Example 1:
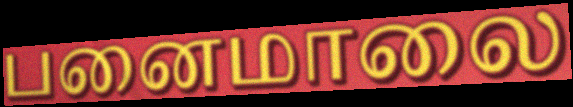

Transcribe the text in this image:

பனைமாலை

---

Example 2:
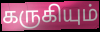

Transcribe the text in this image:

கருகியும்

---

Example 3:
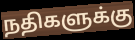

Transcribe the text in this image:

நதிகளுக்கு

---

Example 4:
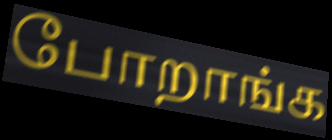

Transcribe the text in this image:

போறாங்க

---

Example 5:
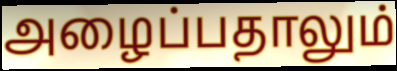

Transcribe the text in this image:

அழைப்பதாலும்